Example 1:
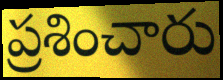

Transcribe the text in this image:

ప్రశించారు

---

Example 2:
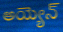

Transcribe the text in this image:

అయ్యెన్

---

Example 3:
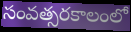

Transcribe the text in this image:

సంవత్సరకాలంలో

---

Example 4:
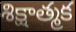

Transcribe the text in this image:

శిక్షాత్మక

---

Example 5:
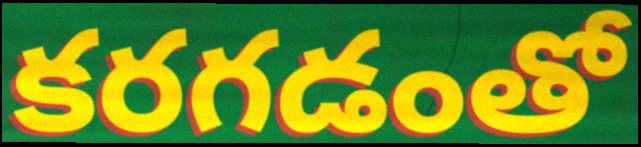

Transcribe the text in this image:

కరగడంతో